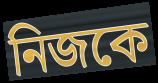
নিজকে